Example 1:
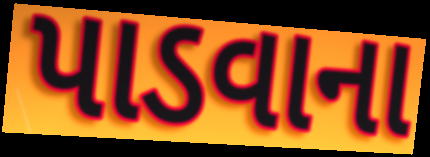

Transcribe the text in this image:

પાડવાના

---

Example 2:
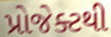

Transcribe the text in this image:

પ્રોજેક્ટથી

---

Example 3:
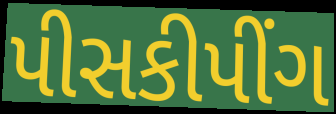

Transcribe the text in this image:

પીસકીપીંગ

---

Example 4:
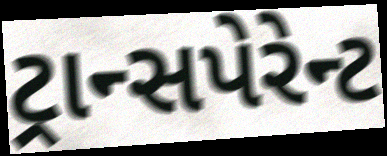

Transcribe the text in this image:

ટ્રાન્સપેરેન્ટ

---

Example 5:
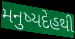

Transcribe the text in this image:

મનુષ્યદેહથી